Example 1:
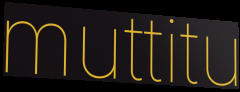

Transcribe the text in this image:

muttitu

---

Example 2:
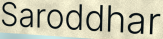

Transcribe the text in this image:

Saroddhar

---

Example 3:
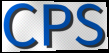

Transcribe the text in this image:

CPS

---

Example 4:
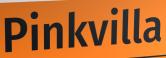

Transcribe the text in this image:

Pinkvilla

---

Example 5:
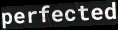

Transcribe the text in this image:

perfected